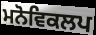
ਮਨੋਵਿਕਲਪ